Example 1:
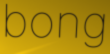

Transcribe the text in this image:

bong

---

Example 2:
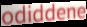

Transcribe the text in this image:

odiddene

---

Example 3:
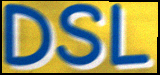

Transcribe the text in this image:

DSL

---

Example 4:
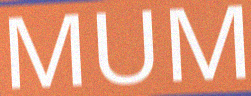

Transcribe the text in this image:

MUM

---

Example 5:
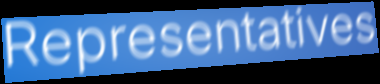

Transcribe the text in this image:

Representatives